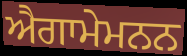
ਐਗਾਮੇਮਨਨ